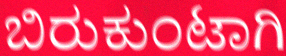
ಬಿರುಕುಂಟಾಗಿ